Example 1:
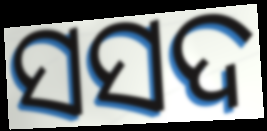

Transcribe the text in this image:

ସସଦ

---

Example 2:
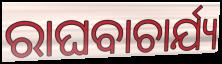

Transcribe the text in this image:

ରାଘବାଚାର୍ଯ୍ୟ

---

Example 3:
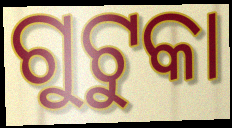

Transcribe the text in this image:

ଗୁଟୁକା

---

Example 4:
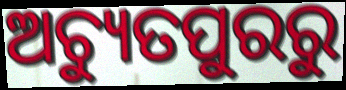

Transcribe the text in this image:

ଅଚ୍ୟୁତପୁରରୁ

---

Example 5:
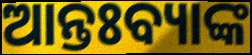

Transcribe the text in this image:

ଆନ୍ତଃବ୍ୟାଙ୍କ